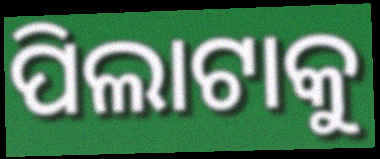
ପିଲାଟାକୁ